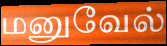
மனுவேல்